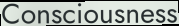
Consciousness